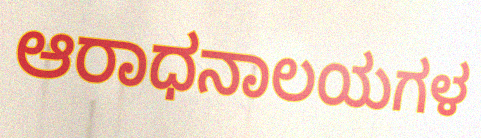
ಆರಾಧನಾಲಯಗಳ